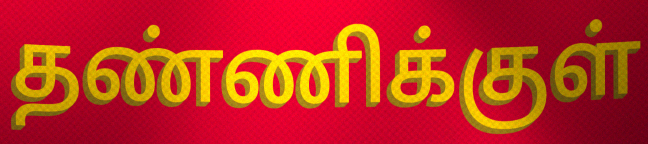
தண்ணிக்குள்